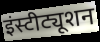
इंस्टीट्यूशन